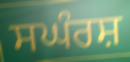
ਸਘੰਰਸ਼